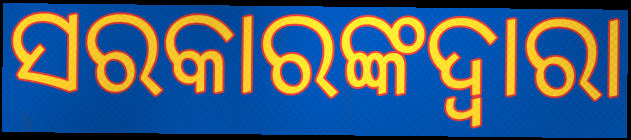
ସରକାରଙ୍କଦ୍ବାରା